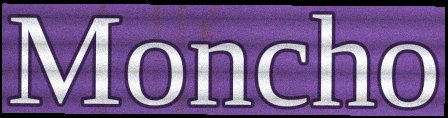
Moncho